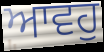
ਆਵਹੁ